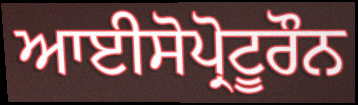
ਆਈਸੋਪ੍ਰੋਟੂਰੌਨ